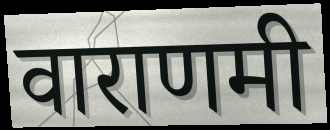
वाराणमी